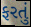
ફરતું